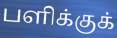
பளிக்குக்